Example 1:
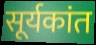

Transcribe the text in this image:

सूर्यकांत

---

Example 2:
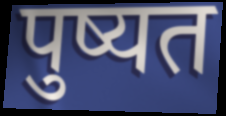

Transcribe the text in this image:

पुष्यत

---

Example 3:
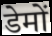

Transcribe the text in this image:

डेमों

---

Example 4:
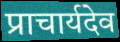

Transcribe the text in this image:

प्राचार्यदेव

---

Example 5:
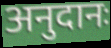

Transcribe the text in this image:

अनुदानः